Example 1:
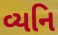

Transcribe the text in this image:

વ્યનિ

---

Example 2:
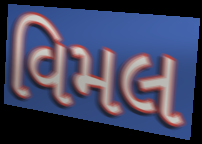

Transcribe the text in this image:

વિમલ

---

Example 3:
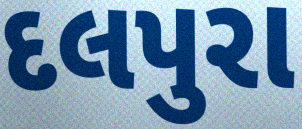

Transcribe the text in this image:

દલપુરા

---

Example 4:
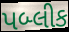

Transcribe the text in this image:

પબ્લીક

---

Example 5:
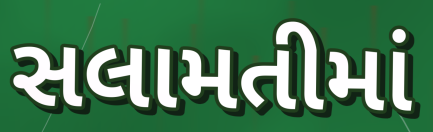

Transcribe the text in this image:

સલામતીમાં